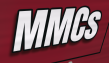
MMCs